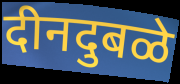
दीनदुबळे